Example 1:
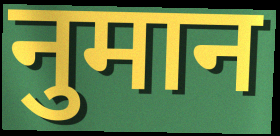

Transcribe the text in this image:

नुमान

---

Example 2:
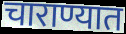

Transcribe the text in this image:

चाराण्यात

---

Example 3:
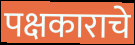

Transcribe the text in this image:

पक्षकाराचे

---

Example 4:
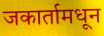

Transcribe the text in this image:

जकार्तामधून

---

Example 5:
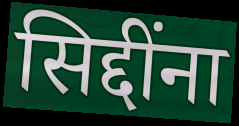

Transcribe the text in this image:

सिद्दींना